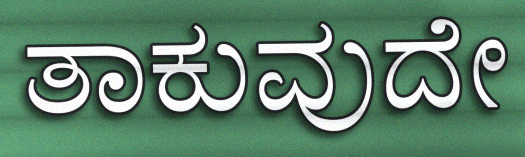
ತಾಕುವುದೇ